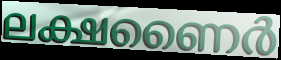
ലക്ഷണൈർ